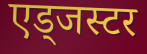
एड्जस्टर